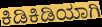
ಕಿಡಿಕಿಡಿಯಾಗಿ